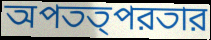
অপতত্পরতার